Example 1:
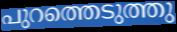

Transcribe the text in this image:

പുറത്തെടുത്തു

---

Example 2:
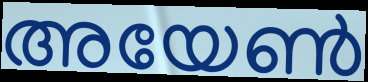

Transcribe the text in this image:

അയേൺ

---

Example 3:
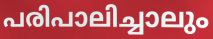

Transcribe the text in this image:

പരിപാലിച്ചാലും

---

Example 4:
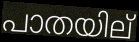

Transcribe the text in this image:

പാതയില്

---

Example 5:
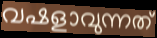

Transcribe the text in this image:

വഷളാവുന്നത്